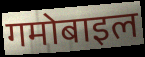
गमोबाइल